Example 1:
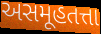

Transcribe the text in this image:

અસમૂહતત્તા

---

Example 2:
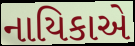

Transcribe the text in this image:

નાયિકાએ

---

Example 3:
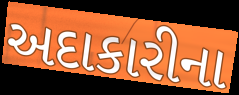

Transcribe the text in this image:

અદાકારીના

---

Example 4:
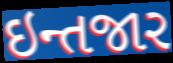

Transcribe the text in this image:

ઇન્તજાર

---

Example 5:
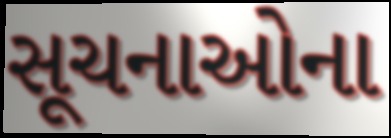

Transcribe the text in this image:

સૂચનાઓના